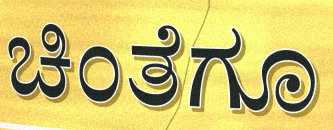
ಚಿಂತೆಗೂ